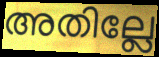
അതില്ലേ